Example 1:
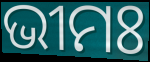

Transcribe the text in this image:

ଭୀମଃ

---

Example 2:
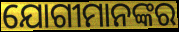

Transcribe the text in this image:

ଯୋଗୀମାନଙ୍କର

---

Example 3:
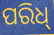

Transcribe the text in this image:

ପରିଧ୍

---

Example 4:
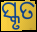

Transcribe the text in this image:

ସ୍କୃତ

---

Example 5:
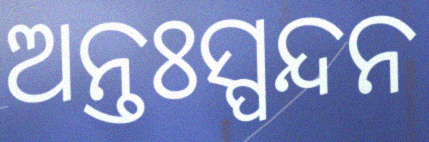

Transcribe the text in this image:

ଅନ୍ତଃସ୍ପନ୍ଦନ